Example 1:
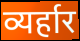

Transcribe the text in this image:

व्यर्हार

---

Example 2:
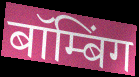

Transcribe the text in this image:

बॉम्बिंग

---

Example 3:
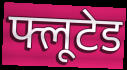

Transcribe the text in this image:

फ्लूटेड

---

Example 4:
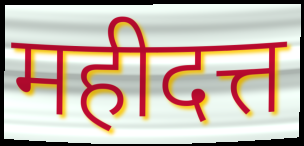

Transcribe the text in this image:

महीदत्त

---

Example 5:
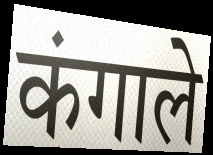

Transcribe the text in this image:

कंगाले